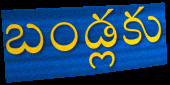
బండ్లకు